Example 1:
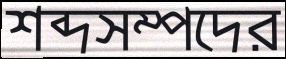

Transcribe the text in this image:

শব্দসম্পদের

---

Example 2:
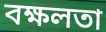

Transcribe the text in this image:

বক্ষলতা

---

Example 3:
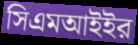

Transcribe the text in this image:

সিএমআইইর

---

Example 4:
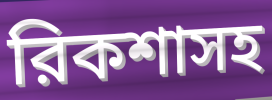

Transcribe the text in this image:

রিকশাসহ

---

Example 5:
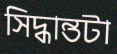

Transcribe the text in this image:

সিদ্ধান্তটা